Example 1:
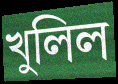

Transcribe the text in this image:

খুলিল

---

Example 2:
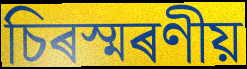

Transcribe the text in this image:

চিৰস্মৰণীয়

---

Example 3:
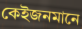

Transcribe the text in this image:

কেইজনমানে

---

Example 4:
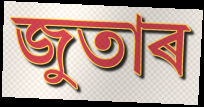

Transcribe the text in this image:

জুতাৰ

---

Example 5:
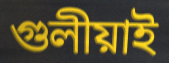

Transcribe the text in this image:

গুলীয়াই